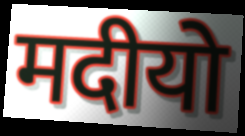
मदीयो